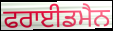
ਫਰਾਈਡਮੈਨ